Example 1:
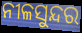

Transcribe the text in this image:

ନୀଳସୁନ୍ଦର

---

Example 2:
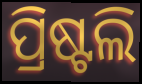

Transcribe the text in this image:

ପ୍ରିଷ୍ଟଲି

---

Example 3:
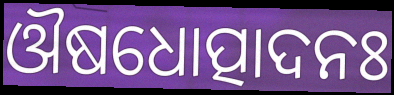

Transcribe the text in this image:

ଔଷଧୋତ୍ପାଦନଃ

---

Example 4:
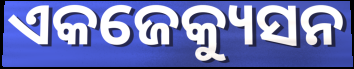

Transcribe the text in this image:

ଏକଜେକ୍ୟୁସନ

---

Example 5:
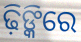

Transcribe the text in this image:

ଢ଼ିଙ୍କିରେ